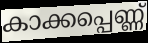
കാക്കപ്പെണ്ണ്